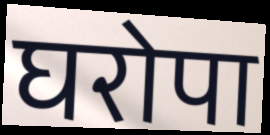
घरोपा